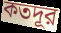
কতদূর